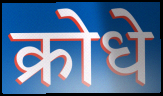
क्रोधे